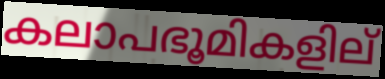
കലാപഭൂമികളില്